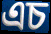
এচ